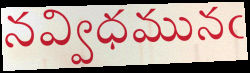
నవ్విధమునఁ